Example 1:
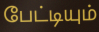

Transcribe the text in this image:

பேட்டியும்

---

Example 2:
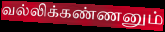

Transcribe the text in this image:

வல்லிக்கண்ணனும்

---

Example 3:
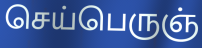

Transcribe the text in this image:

செய்பெருஞ்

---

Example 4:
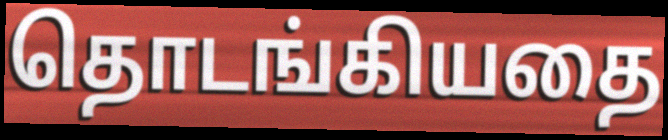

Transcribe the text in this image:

தொடங்கியதை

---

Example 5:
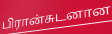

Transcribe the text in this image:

பிரான்சுடனான